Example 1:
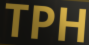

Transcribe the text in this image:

TPH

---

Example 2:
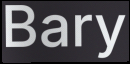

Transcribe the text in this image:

Bary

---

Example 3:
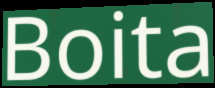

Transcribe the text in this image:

Boita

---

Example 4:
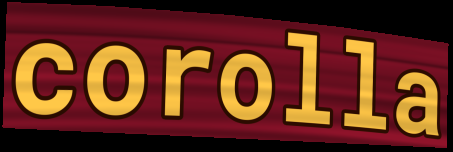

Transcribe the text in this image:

corolla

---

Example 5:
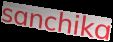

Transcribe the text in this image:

sanchika